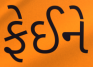
ફેઈને